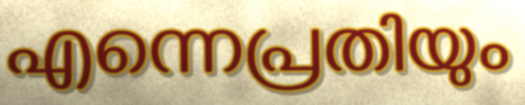
എന്നെപ്രതിയും